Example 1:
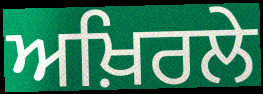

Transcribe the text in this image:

ਅਖ਼ਿਰਲੇ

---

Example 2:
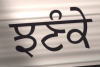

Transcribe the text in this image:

ਝਣੰਕੇ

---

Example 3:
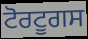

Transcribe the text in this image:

ਟੋਰਟੂਗਸ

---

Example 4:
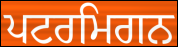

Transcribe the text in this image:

ਪਟਰਮਿਗਨ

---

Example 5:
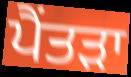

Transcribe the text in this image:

ਪੈਂਤੜਾ